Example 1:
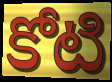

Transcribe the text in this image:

కోటి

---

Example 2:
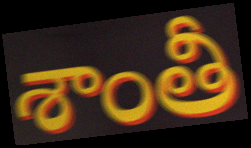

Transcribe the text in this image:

శాంతీ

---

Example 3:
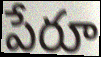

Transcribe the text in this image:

పేరూ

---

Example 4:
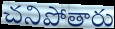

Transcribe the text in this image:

చనిపోతారు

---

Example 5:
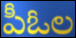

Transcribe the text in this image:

పీఓల